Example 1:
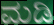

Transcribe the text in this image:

ಮಡಿ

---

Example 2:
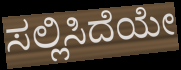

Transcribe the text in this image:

ಸಲ್ಲಿಸಿದೆಯೇ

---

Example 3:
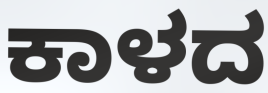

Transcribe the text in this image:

ಕಾಳದ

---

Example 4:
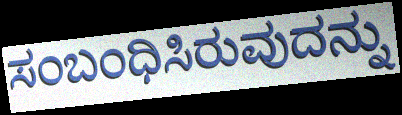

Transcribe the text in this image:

ಸಂಬಂಧಿಸಿರುವುದನ್ನು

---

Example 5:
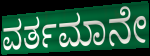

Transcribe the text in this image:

ವರ್ತಮಾನೇ